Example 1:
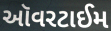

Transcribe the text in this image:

ઑવરટાઈમ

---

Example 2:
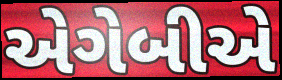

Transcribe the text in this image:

એગેબીએ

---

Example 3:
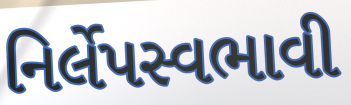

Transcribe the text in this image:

નિર્લેપસ્વભાવી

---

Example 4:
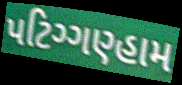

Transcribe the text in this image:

પટિગ્ગણ્હામ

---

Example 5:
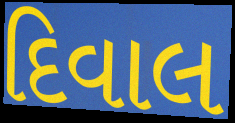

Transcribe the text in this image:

દિવાલ